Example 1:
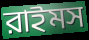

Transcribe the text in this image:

রাইমস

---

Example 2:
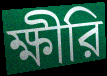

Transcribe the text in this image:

ক্ষীরি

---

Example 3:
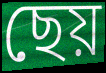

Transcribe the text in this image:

ছেয়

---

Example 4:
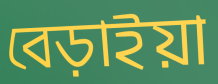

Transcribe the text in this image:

বেড়াইয়া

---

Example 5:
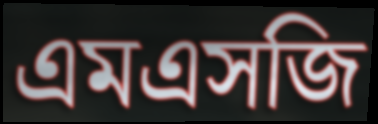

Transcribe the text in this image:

এমএসজি